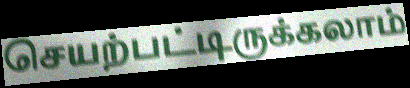
செயற்பட்டிருக்கலாம்